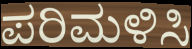
ಪರಿಮಳಿಸಿ